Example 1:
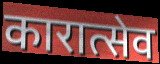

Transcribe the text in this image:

कारात्सेव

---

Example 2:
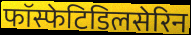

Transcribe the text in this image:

फॉस्फेटिडिलसेरिन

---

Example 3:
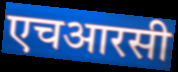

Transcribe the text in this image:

एचआरसी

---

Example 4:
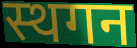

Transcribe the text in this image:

स्थगन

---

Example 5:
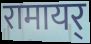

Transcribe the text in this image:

रामायर्